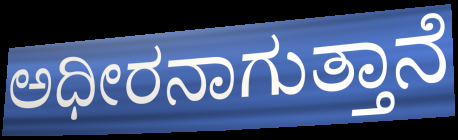
ಅಧೀರನಾಗುತ್ತಾನೆ